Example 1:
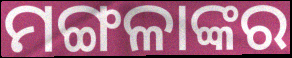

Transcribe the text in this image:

ମଙ୍ଗଳାଙ୍କର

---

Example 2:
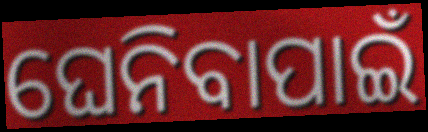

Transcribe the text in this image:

ଘେନିବାପାଇଁ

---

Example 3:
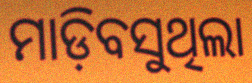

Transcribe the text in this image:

ମାଡ଼ିବସୁଥିଲା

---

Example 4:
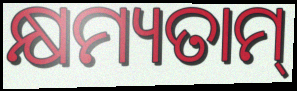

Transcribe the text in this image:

କ୍ଷମ୍ୟତାମ୍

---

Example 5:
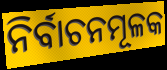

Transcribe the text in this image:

ନିର୍ବାଚନମୂଳକ